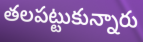
తలపట్టుకున్నారు